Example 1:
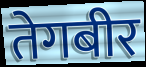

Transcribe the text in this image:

तेगबीर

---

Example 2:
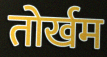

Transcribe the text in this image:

तोर्खम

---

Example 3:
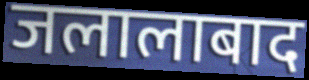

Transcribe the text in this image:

जलालाबाद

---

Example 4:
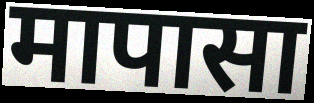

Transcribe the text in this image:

मापासा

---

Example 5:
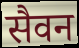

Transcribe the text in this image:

सैवन